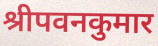
श्रीपवनकुमार